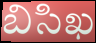
బిసిఖ